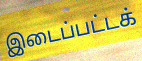
இடைப்பட்டக்